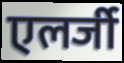
एलर्जी